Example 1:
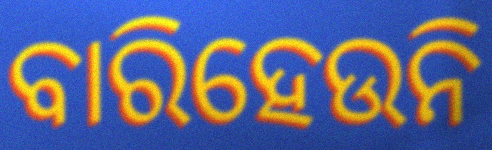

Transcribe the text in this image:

ବାରିହେଉନି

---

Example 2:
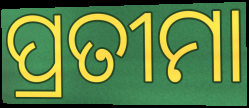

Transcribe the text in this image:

ପ୍ରତୀମା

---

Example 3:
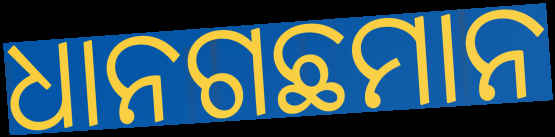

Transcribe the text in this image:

ଧାନଗଛମାନ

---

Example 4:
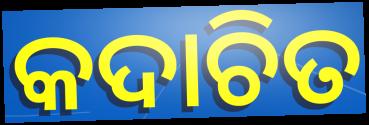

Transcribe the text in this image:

କଦାଚିତ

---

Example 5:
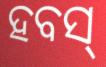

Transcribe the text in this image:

ହବସ୍